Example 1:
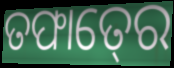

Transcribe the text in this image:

ତଫାତ୍‍ରେ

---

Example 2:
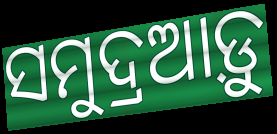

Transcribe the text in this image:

ସମୁଦ୍ରଆଡ଼ୁ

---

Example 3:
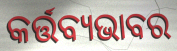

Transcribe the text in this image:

କର୍ତ୍ତବ୍ୟଭାବର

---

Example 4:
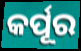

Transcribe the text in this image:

କର୍ପୂର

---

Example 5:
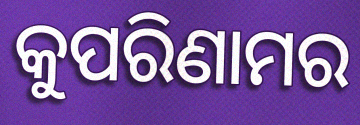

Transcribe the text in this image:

କୁପରିଣାମର